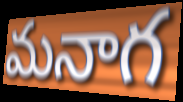
మనాగ